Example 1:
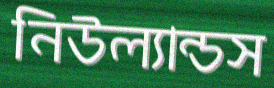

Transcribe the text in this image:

নিউল্যান্ডস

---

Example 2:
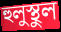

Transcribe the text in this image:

হুলুস্থুল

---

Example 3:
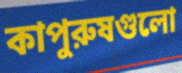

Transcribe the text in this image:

কাপুরুষগুলো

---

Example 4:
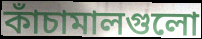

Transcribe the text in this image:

কাঁচামালগুলো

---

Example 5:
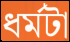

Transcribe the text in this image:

ধর্মটা